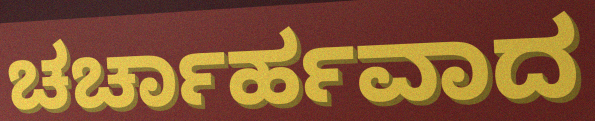
ಚರ್ಚಾರ್ಹವಾದ